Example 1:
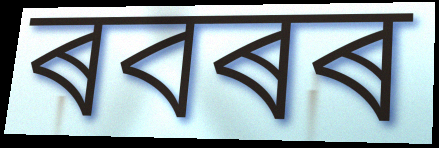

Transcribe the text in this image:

ৰবৰৰ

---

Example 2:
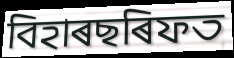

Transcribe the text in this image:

বিহাৰছৰিফত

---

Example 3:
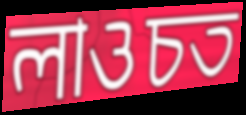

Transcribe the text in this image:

লাওচত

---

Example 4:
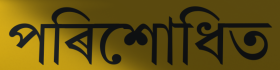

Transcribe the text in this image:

পৰিশোধিত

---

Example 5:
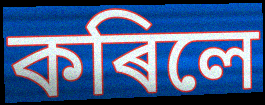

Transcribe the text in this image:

কৰিলে